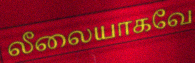
லீலையாகவே